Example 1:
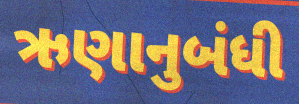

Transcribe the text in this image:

ઋણાનુબંધી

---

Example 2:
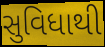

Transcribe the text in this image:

સુવિધાથી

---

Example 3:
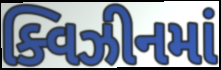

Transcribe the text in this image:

ક્વિઝીનમાં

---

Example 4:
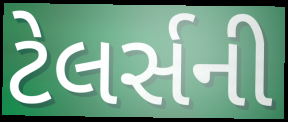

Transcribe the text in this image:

ટેલર્સની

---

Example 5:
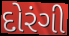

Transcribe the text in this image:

દોરંગી